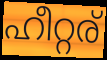
ഹീറ്റര്